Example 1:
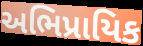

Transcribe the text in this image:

અભિપ્રાયિક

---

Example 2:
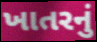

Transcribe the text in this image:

ખાતરનું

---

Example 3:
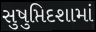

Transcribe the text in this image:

સુષુપ્તિદશામાં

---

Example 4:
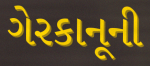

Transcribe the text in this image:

ગેરકાનૂની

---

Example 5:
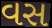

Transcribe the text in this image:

વસ